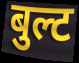
बुल्ट